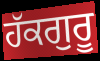
ਹੱਕਗੁਰੂ